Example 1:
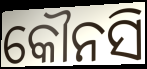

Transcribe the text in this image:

କୌନସି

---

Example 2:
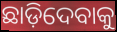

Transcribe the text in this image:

ଛାଡ଼ିଦେବାକୁ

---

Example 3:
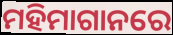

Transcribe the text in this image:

ମହିମାଗାନରେ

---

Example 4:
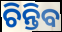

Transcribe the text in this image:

ଚିନ୍ତିବ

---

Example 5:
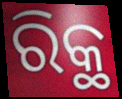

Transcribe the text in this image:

ରିକ୍ଥ